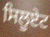
ਸਿਲੂਏਟ